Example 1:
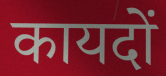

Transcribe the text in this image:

कायदों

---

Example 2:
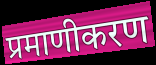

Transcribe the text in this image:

प्रमाणीकरण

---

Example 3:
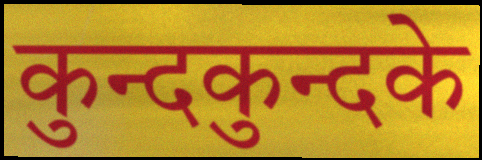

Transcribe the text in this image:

कुन्दकुन्दके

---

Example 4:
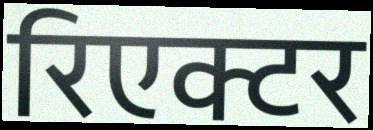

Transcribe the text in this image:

रिएक्टर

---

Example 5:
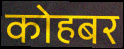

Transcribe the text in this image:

कोहबर